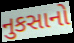
નુકસાનો